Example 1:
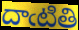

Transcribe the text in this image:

దాఁటితి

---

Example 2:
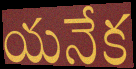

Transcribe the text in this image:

యనేక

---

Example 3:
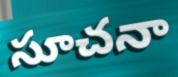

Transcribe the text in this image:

సూచనా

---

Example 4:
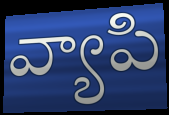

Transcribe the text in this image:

వ్యాపి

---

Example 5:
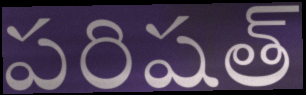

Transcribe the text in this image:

పరిషత్